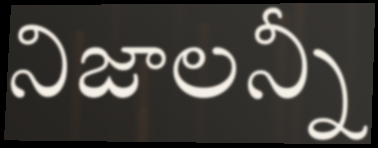
నిజాలన్నీ